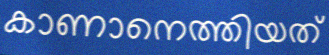
കാണാനെത്തിയത്